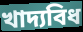
খাদ্যবিধ